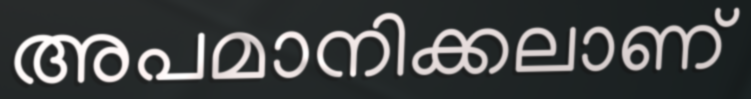
അപമാനിക്കലാണ്